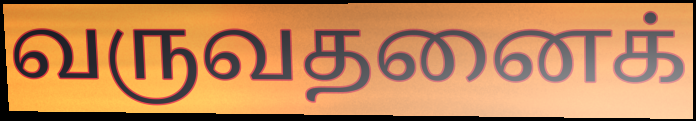
வருவதனைக்